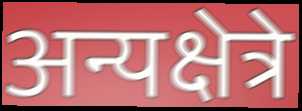
अन्यक्षेत्रे